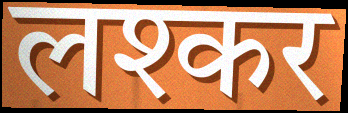
लश्‍कर